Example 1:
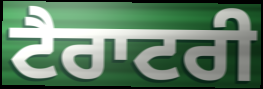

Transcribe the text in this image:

ਟੈਰਾਟਰੀ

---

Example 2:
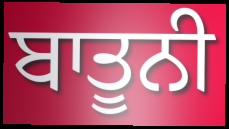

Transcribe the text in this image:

ਬਾਤੂਨੀ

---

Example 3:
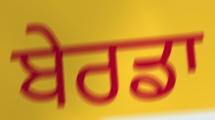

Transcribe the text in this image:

ਬੇਰਡਾ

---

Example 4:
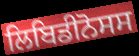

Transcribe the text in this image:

ਲਿਬਿਡੀਨੋਸਸ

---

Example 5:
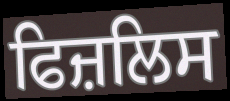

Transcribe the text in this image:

ਫਿਜ਼ਲਿਸ